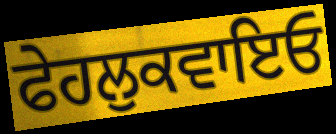
ਫੇਹਲੁਕਵਾਇਓ